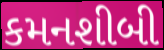
કમનશીબી